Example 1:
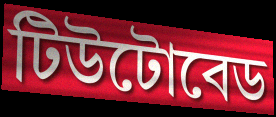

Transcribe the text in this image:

টিউটোবেড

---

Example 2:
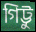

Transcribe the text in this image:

গিট্টু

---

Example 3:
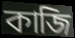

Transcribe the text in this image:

কাজি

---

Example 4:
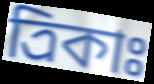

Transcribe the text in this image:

ত্রিকাঃ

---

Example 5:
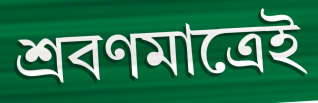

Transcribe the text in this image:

শ্রবণমাত্রেই